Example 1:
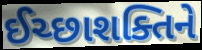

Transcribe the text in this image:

ઈચ્છાશક્તિને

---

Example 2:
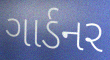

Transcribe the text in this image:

ગાર્ડનર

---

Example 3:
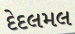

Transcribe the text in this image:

દેદલમલ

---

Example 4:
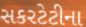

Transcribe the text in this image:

સકરટેટીના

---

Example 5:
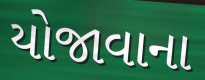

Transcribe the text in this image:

યોજાવાના